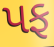
પફ